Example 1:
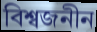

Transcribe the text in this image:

বিশ্বজনীন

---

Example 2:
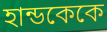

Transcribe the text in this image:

হান্ডকেকে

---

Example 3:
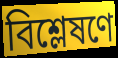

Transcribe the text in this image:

বিশ্লেষণে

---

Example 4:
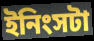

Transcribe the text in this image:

ইনিংসটা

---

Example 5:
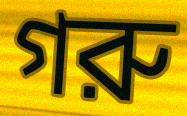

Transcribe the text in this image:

গরু